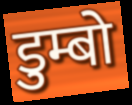
डुम्बो